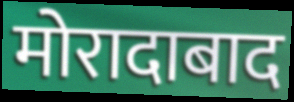
मोरादाबाद